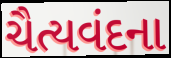
ચૈત્યવંદના